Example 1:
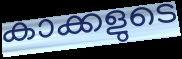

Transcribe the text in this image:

കാക്കളുടെ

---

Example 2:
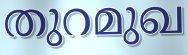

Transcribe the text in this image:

തുറമുഖ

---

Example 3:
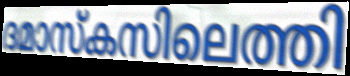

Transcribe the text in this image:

ദമാസ്കസിലെത്തി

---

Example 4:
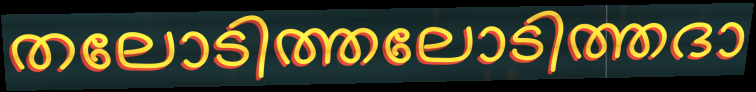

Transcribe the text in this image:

തലോടിത്തലോടിത്തദാ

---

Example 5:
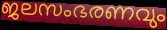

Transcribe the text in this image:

ജലസംഭരണവും